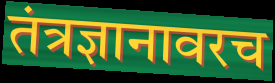
तंत्रज्ञानावरच